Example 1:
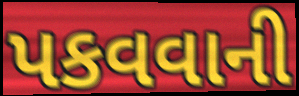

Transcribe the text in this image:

પકવવાની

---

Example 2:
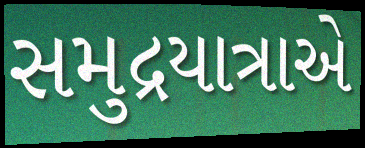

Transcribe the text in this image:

સમુદ્રયાત્રાએ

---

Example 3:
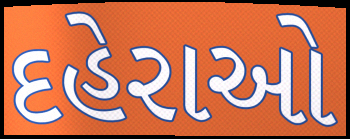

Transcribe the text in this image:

દહેરાઓ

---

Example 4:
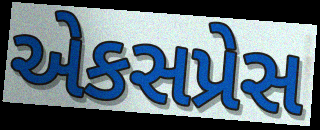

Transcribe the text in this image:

એકસપ્રેસ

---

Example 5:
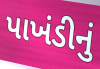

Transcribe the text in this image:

પાખંડીનું